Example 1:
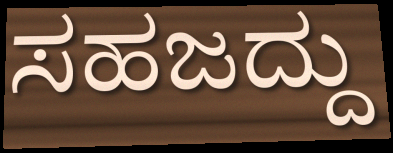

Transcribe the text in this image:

ಸಹಜದ್ದು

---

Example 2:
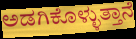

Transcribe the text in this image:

ಅಡಗಿಕೊಳ್ಳುತ್ತಾನೆ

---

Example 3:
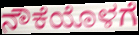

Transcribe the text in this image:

ನೌಕೆಯೊಳಗೆ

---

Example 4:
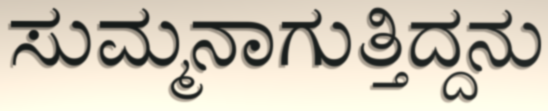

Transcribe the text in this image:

ಸುಮ್ಮನಾಗುತ್ತಿದ್ದನು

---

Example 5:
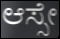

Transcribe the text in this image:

ಆಸ್ಸೇ